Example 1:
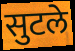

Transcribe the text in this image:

सुटले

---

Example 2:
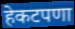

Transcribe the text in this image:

हेकटपणा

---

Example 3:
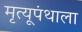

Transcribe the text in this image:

मृत्यूपंथाला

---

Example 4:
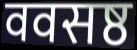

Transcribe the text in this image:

ववसष्ठ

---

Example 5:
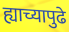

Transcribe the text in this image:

ह्याच्यापुढे